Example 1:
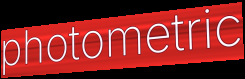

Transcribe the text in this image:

photometric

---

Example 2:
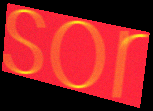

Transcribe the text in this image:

sor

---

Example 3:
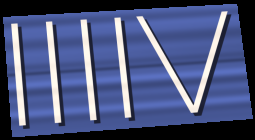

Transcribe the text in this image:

IIIIV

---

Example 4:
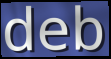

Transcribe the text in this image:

deb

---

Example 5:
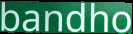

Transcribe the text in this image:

bandho